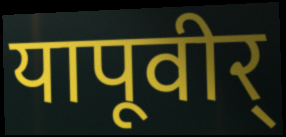
यापूवीर्